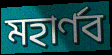
মহার্ণব